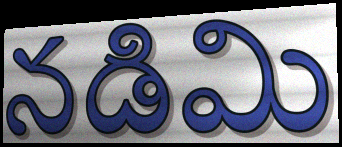
నడిమి